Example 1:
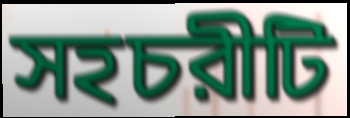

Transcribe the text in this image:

সহচরীটি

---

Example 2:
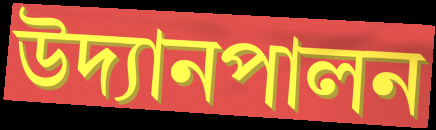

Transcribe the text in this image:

উদ্যানপালন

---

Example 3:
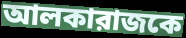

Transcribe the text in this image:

আলকারাজকে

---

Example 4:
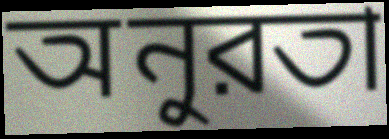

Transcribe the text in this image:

অনুরতা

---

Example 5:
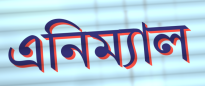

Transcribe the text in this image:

এনিম্যাল